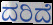
ದರಿದೆ